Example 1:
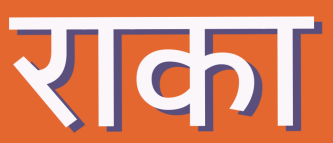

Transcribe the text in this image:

राका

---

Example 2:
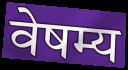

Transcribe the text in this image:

वेषम्य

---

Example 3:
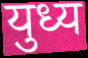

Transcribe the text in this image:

युध्य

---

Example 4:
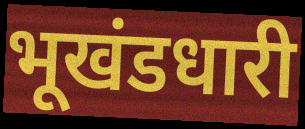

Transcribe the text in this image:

भूखंडधारी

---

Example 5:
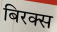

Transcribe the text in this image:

बिरक्स